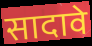
सादावे